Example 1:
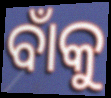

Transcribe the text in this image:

ବାଁକୁ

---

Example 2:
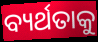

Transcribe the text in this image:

ବ୍ୟର୍ଥତାକୁ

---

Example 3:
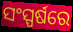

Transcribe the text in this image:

ସଂସ୍ପର୍ଷରେ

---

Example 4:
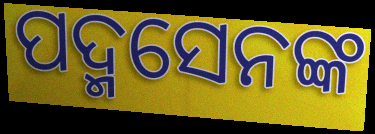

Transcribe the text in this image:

ପଦ୍ମସେନଙ୍କ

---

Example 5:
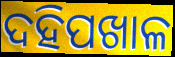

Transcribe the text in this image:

ଦହିପଖାଳ